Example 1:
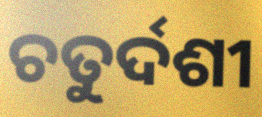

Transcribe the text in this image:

ଚତୁର୍ଦଶୀ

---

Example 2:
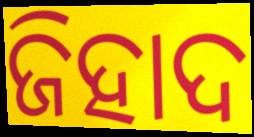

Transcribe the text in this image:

ଜିହାଦ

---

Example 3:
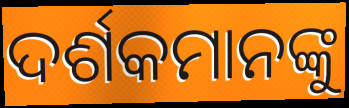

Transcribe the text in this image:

ଦର୍ଶକମାନଙ୍କୁ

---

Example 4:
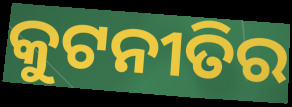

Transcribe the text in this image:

କୁଟନୀତିର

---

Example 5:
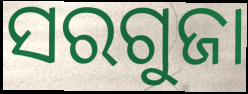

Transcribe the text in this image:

ସରଗୁଜା